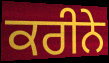
ਕਰੀਨੇ